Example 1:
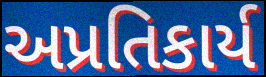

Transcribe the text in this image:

અપ્રતિકાર્ય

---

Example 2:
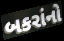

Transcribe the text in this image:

બકરાંનો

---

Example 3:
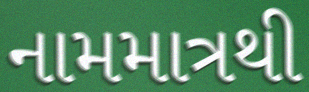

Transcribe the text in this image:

નામમાત્રથી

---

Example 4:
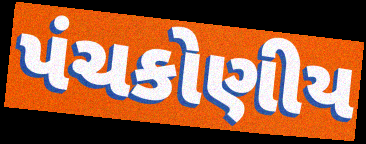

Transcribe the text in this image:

પંચકોણીય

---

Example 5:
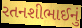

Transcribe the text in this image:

રતનશીભાઈનું